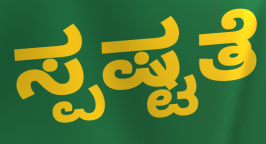
ಸ್ಪಷ್ಟತೆ